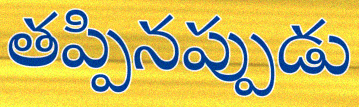
తప్పినప్పుడు